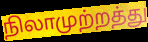
நிலாமுற்றத்து